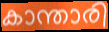
കാന്താരി